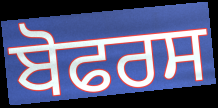
ਬੋਫਰਸ